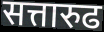
सत्तारुढ